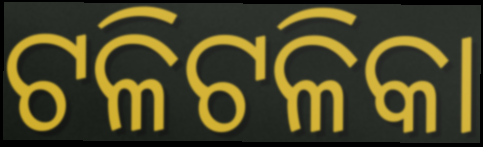
ଟଳିଟଳିକା